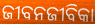
ଜୀବନଜୀବିକା